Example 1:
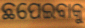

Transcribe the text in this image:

ଛପେଇବାକୁ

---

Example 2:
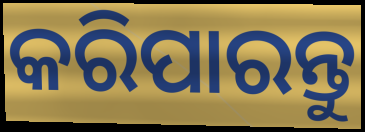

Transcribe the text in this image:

କରିପାରନ୍ତୁ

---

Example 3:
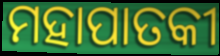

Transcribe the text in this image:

ମହାପାତକୀ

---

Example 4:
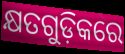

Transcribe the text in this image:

କ୍ଷତଗୁଡ଼ିକରେ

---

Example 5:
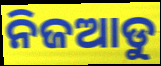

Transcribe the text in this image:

ନିଜଆଡୁ